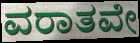
ವರಾತವೇ